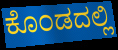
ಕೊಂಡದಲ್ಲಿ